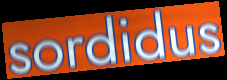
sordidus